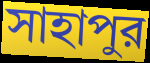
সাহাপুর